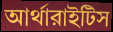
আর্থারাইটিস